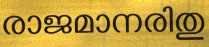
രാജമാനരിതു